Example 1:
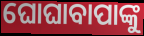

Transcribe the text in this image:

ଘୋଘାବାପାଙ୍କୁ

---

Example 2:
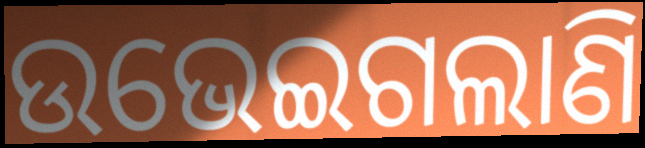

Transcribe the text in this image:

ଉଭେଇଗଲାଣି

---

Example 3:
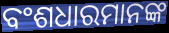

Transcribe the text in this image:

ବଂଶଧାରମାନଙ୍କ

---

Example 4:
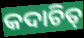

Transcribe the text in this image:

କଦାଚିତ୍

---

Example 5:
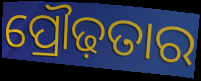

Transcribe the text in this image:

ପ୍ରୌଢ଼ତାର